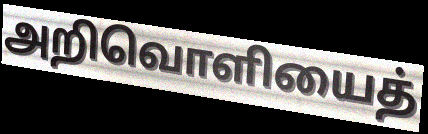
அறிவொளியைத்